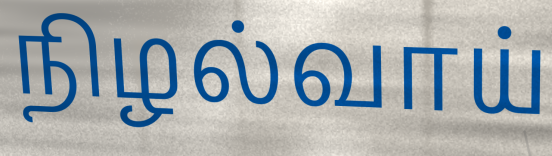
நிழல்வாய்